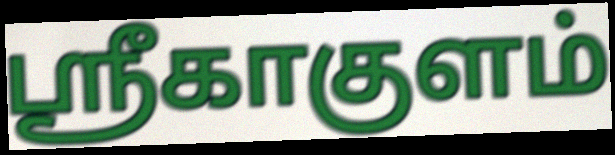
ஸ்ரீகாகுளம்